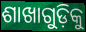
ଶାଖାଗୁଡ଼ିକୁ